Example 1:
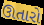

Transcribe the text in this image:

ઊતારો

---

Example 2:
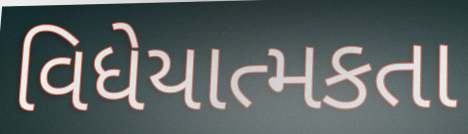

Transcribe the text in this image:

વિધેયાત્મકતા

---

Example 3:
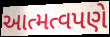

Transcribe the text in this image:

આત્મત્વપણે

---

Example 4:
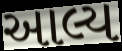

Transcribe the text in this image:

આલ્ય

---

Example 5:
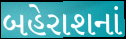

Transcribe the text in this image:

બહેરાશનાં